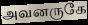
அவனருகே